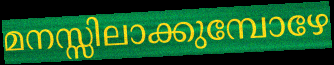
മനസ്സിലാക്കുമ്പോഴേ